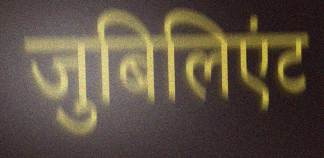
जुबिलिएंट